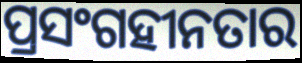
ପ୍ରସଂଗହୀନତାର